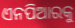
ଏନପିଆରକୁ